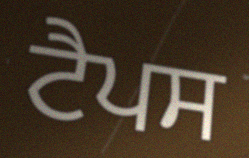
ਟੈਪਸ